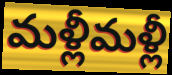
మళ్లీమళ్లీ